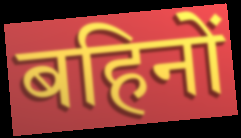
बहिनों